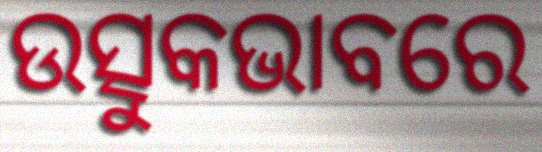
ଉତ୍ସୁକଭାବରେ